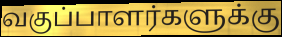
வகுப்பாளர்களுக்கு